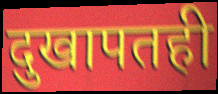
दुखापतही